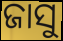
ଜାସୁ